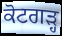
ਕੋਟਗੜ੍ਹ